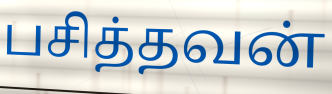
பசித்தவன்